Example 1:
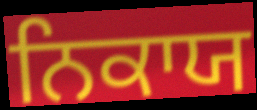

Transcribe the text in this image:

ਨਿਕਾਯ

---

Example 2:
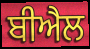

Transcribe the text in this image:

ਬੀਐਲ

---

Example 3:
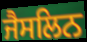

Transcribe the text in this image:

ਜੈਸਲਿਨ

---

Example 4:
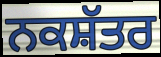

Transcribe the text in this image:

ਨਕਸ਼ੱਤਰ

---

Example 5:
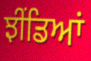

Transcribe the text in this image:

ਝੀਂਡਿਆਂ